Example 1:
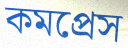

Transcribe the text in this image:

কমপ্রেস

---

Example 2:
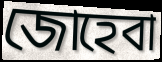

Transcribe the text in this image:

জোহেবা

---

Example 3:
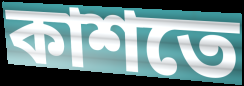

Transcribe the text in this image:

কাশতে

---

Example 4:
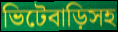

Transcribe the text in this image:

ভিটেবাড়িসহ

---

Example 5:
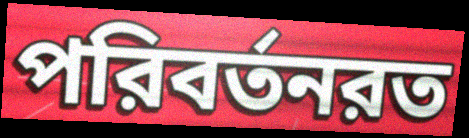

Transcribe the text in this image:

পরিবর্তনরত